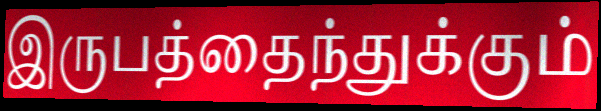
இருபத்தைந்துக்கும்